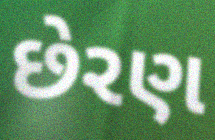
છેરણ